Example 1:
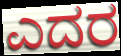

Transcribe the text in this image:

ಎದರ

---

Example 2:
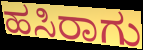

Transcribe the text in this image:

ಹಸಿರಾಗು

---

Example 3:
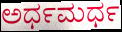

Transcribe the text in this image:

ಅರ್ಧಮರ್ಧ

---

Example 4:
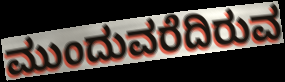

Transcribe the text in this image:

ಮುಂದುವರೆದಿರುವ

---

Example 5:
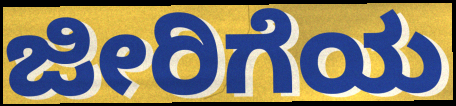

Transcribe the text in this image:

ಜೀರಿಗೆಯ